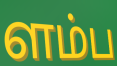
ளம்ப